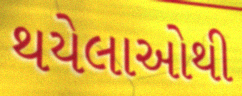
થયેલાઓથી